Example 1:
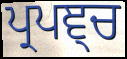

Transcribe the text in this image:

ਪ੍ਰਪਞ੍ਚ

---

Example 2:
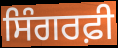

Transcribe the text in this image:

ਸਿੰਗਰਫ਼ੀ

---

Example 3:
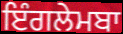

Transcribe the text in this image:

ਇੰਗਲੇਮਬਾ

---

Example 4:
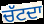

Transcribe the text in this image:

ਚੱਟਦਾ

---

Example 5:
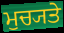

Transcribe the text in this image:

ਮੁਚ੍ਯਤੇ